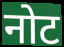
नोट